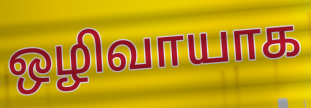
ஒழிவாயாக